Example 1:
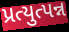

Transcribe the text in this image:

પ્રત્યુત્પન્ન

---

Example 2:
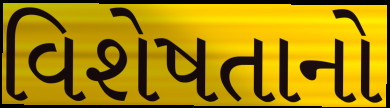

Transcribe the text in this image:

વિશેષતાનો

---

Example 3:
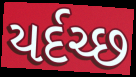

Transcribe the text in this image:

યર્દચ્છ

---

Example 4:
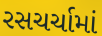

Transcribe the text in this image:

રસચર્ચામાં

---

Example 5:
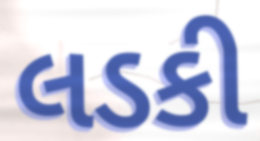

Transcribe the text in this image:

લડકી